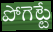
పోగెట్టే